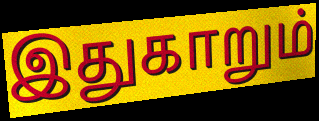
இதுகாறும்